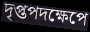
দৃপ্তপদক্ষেপে